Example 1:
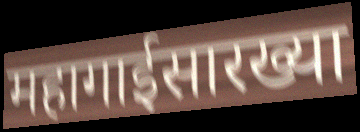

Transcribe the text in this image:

महागाईसारख्या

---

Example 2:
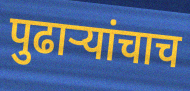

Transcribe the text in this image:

पुढाऱ्यांचाच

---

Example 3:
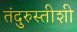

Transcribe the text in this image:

तंदुरुस्तीशी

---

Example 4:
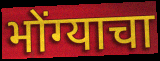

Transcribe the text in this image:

भोंग्याचा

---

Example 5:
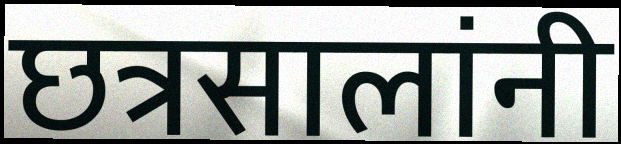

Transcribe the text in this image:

छत्रसालांनी